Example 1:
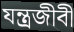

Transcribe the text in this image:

যন্ত্রজীবী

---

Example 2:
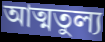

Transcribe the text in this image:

আত্মতুল্য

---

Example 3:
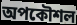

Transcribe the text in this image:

অপকৌশল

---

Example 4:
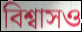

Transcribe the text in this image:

বিশ্বাসও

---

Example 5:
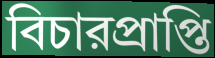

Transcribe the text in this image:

বিচারপ্রাপ্তি